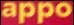
appo